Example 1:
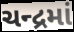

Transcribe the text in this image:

ચન્દ્રમાં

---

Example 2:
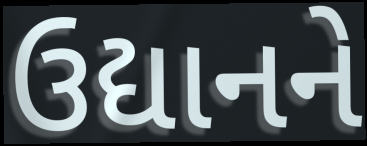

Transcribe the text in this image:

ઉદ્યાનને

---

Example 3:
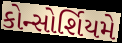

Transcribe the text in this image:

કોન્સોર્શિયમે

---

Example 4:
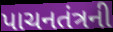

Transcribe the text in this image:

પાચનતંત્રની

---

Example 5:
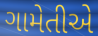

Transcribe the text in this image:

ગામેતીએ